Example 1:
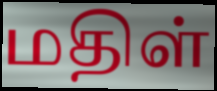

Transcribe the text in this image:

மதிள்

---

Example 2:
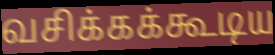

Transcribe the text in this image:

வசிக்கக்கூடிய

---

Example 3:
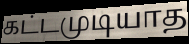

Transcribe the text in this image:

கட்டமுடியாத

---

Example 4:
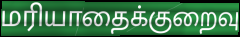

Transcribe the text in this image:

மரியாதைக்குறைவு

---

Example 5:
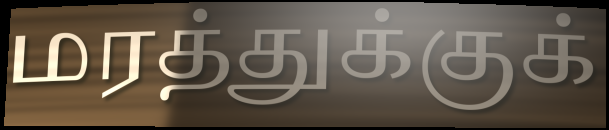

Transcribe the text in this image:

மரத்துக்குக்